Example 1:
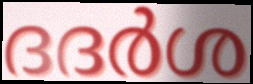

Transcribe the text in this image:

ദദർശ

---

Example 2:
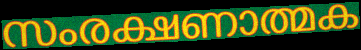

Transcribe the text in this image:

സംരക്ഷണാത്മക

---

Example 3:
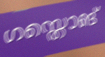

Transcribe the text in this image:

ഗസ്തൊങ്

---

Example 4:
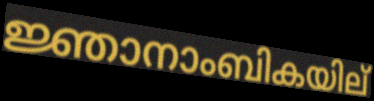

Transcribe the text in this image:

ജ്ഞാനാംബികയില്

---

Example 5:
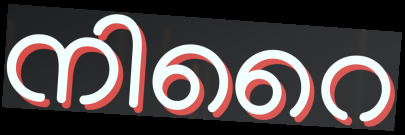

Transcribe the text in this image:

നിറൈ